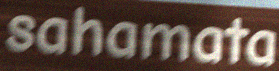
sahamata